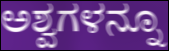
ಅಶ್ವಗಳನ್ನೂ